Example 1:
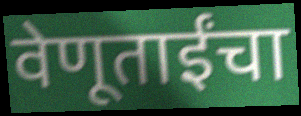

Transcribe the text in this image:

वेणूताईंचा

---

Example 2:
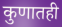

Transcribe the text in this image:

कुणातही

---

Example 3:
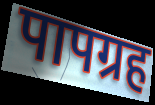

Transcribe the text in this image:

पापग्रह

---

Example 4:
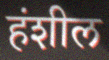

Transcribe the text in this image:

हंशील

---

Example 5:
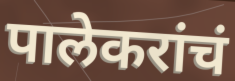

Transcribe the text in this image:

पालेकरांचं